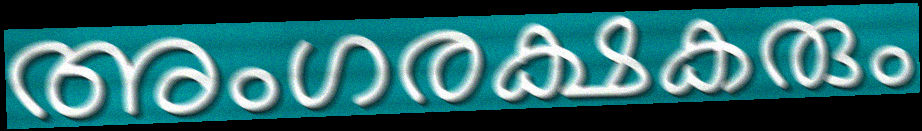
അംഗരക്ഷകരും